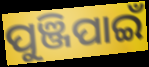
ପୁଞ୍ଜିପାଇଁ